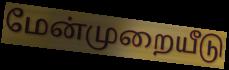
மேன்முறையீடு